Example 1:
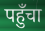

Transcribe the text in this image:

पहुँचा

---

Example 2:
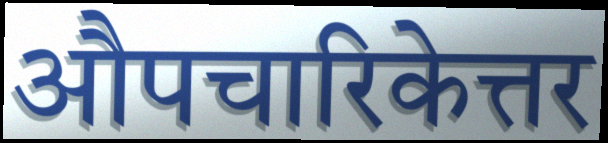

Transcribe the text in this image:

औपचारिकेत्तर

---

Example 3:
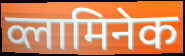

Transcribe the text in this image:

व्लामिनेक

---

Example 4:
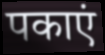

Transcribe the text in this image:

पकाएं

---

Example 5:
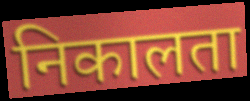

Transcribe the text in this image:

निकालता